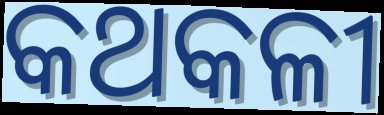
କଥକଳୀ